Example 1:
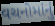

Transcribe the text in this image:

વચનોમાંનું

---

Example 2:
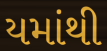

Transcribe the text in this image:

યમાંથી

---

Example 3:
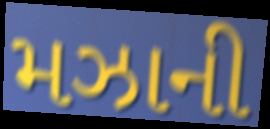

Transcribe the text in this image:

મઝાની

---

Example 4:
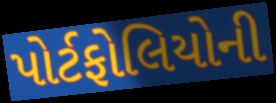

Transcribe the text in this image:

પોર્ટફોલિયોની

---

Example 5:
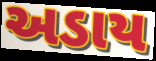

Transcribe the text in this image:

અડાય